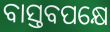
ବାସ୍ତବପକ୍ଷେ